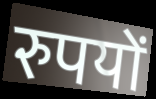
रुपयों